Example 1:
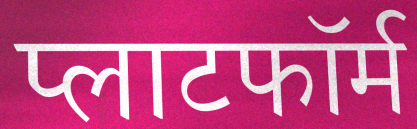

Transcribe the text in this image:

प्लाटफॉर्म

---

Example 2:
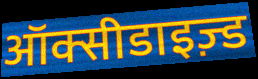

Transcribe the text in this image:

ऑक्सीडाइज़्ड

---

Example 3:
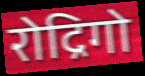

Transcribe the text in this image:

रोद्रिगो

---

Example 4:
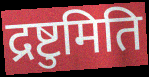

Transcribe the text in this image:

द्रष्टुमिति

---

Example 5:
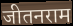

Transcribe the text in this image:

जीतनराम